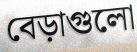
বেড়াগুলো